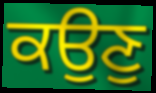
ਕਉਣੁ